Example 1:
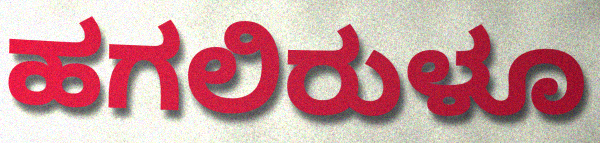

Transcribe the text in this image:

ಹಗಲಿರುಳೂ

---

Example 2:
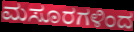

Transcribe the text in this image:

ಮಸೂರಗಳಿಂದ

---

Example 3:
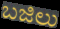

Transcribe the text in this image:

ಬಜಿಲು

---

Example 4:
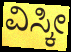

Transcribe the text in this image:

ವಿಸ್ಕೀ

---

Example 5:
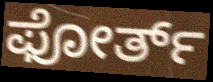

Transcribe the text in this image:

ಫೋರ್ತ್